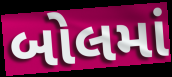
બોલમાં